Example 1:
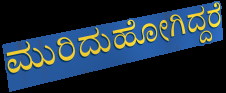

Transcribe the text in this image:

ಮುರಿದುಹೋಗಿದ್ದರೆ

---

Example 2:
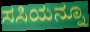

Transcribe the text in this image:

ಸಸಿಯನ್ನೂ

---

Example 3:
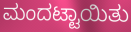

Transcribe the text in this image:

ಮಂದಟ್ಟಾಯಿತು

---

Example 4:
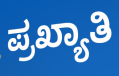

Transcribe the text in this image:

ಪ್ರಖ್ಯಾತಿ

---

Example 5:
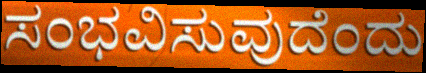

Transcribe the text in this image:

ಸಂಭವಿಸುವುದೆಂದು